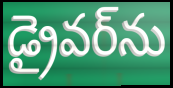
డ్రైవర్‌ను